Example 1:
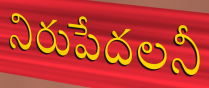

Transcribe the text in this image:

నిరుపేదలనీ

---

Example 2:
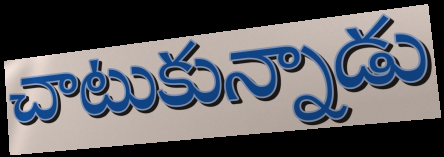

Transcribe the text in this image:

చాటుకున్నాడు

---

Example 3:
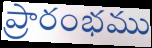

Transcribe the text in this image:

ప్రారంభము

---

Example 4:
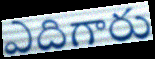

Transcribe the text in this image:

ఎదిగారు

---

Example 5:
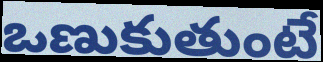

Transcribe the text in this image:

ఒణుకుతుంటే